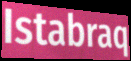
Istabraq